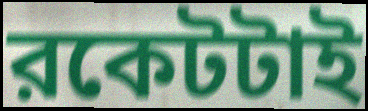
রকেটটাই